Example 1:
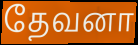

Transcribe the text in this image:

தேவனா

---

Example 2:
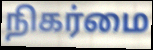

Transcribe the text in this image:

நிகர்மை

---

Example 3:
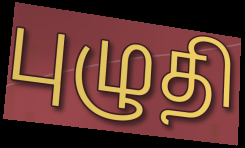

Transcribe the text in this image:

புழுதி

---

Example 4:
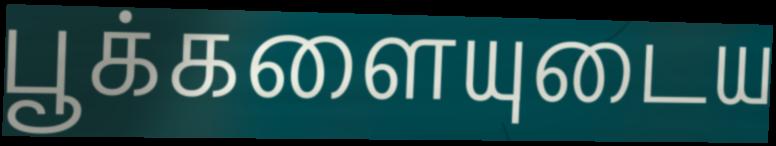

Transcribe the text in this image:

பூக்களையுடைய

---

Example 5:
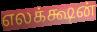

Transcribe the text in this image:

எலக்க்ஷன்